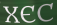
XEC